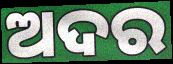
ଅଦର